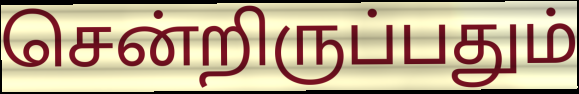
சென்றிருப்பதும்